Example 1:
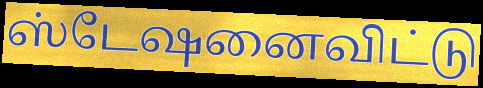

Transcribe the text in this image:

ஸ்டேஷனைவிட்டு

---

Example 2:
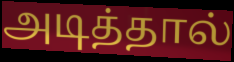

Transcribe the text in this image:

அடித்தால்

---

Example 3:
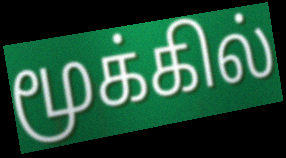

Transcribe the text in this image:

மூக்கில்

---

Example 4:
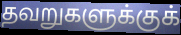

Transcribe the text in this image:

தவறுகளுக்குக்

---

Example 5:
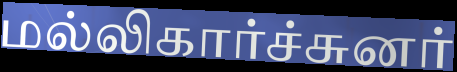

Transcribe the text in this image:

மல்லிகார்ச்சுனர்